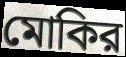
মোকির